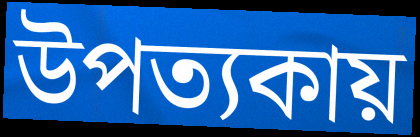
উপত্যকায়